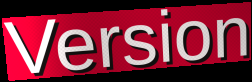
Version